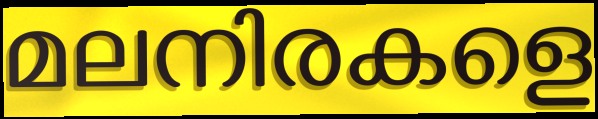
മലനിരകളെ